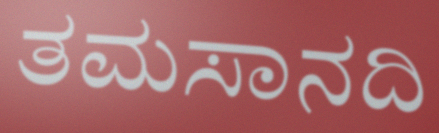
ತಮಸಾನದಿ